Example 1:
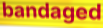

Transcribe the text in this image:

bandaged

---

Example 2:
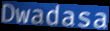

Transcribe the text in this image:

Dwadasa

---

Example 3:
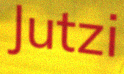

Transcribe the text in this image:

Jutzi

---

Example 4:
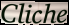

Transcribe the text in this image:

Cliche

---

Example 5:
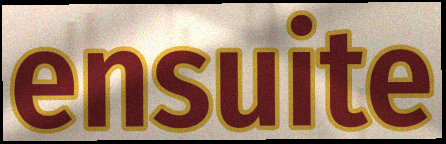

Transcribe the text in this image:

ensuite